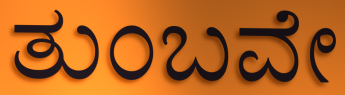
ತುಂಬವೇ